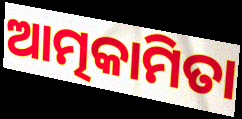
ଆତ୍ମକାମିତା